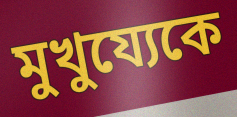
মুখুয্যেকে